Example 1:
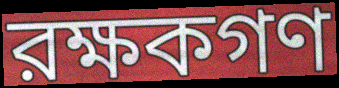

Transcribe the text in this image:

রক্ষকগণ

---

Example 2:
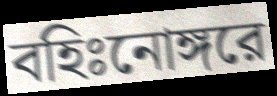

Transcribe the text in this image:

বহিঃনোঙ্গরে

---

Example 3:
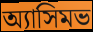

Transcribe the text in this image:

অ্যাসিমভ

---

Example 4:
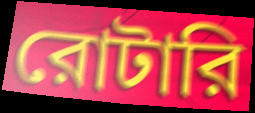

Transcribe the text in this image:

রোটারি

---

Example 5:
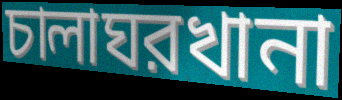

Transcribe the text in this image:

চালাঘরখানা